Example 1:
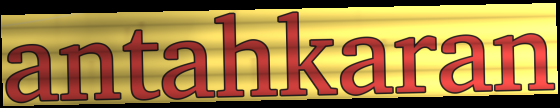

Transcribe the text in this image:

antahkaran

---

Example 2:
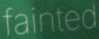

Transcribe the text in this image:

fainted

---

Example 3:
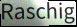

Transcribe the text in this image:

Raschig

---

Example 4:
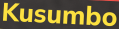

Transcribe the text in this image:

Kusumbo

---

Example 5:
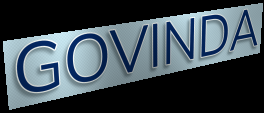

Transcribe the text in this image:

GOVINDA